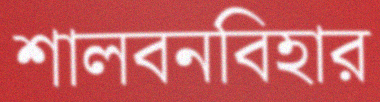
শালবনবিহার